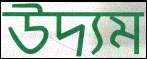
উদ্যম